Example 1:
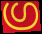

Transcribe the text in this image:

ഗ്ര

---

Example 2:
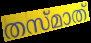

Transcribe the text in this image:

തസ്മാത്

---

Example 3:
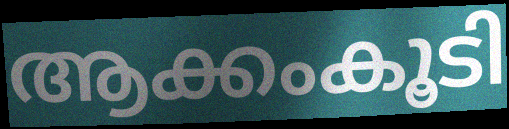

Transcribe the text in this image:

ആക്കംകൂടി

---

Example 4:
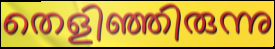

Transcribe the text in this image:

തെളിഞ്ഞിരുന്നു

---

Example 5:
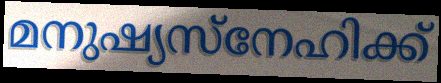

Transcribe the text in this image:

മനുഷ്യസ്നേഹിക്ക്